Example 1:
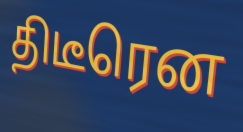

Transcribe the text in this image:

திடீரென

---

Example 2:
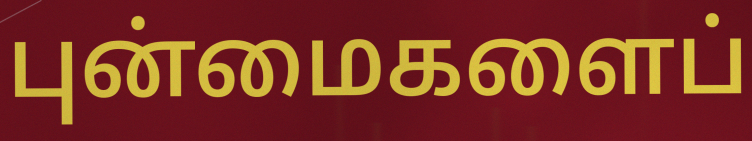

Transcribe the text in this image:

புன்மைகளைப்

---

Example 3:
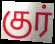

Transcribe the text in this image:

குர்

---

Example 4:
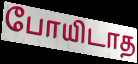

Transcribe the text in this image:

போயிடாத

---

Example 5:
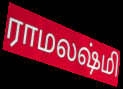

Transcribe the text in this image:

ராமலஷ்மி